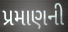
પ્રમાણની